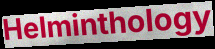
Helminthology